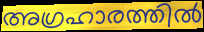
അഗ്രഹാരത്തിൽ